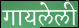
गायलेली